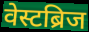
वेस्टब्रिज